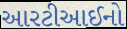
આરટીઆઈનો